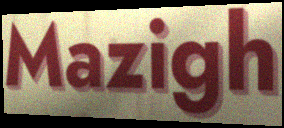
Mazigh